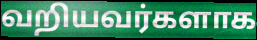
வறியவர்களாக